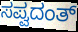
ಸಪ್ವದಂತ್